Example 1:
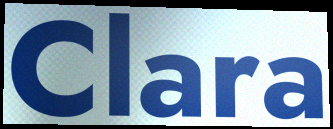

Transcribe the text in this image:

Clara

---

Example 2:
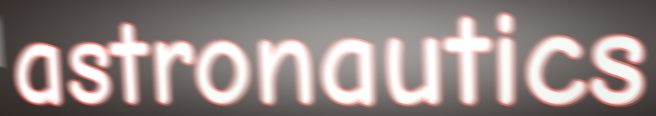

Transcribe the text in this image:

astronautics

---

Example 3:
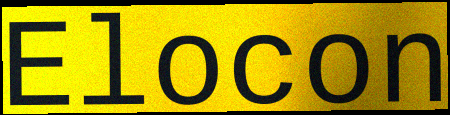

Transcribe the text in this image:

Elocon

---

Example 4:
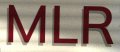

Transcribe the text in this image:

MLR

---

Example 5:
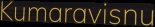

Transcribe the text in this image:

Kumaravisnu